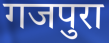
गजपुरा